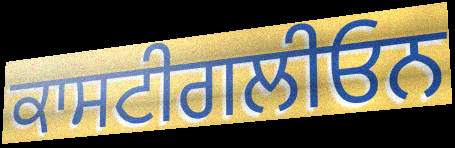
ਕਾਸਟੀਗਲੀਓਨ